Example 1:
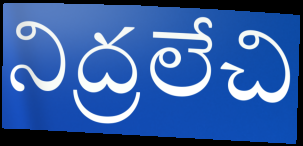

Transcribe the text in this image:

నిద్రలేచి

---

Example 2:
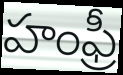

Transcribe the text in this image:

హంఫ్రీ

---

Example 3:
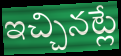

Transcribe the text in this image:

ఇచ్చినట్లే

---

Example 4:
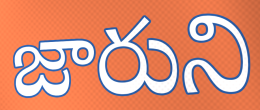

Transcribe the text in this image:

జారుని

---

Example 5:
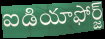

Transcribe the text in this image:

ఐడియాఫోర్జ్